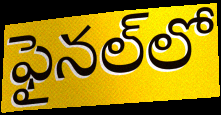
ఫైనల్‌లో